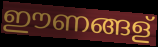
ഈണങ്ങള്